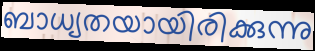
ബാധ്യതയായിരിക്കുന്നു